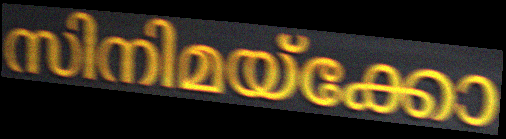
സിനിമയ്ക്കോ